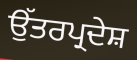
ਉੱਤਰਪ੍ਰਦੇਸ਼